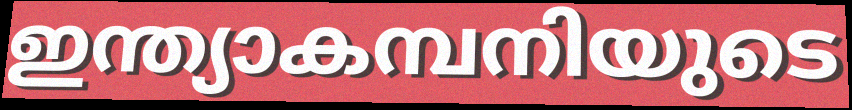
ഇന്ത്യാകമ്പനിയുടെ